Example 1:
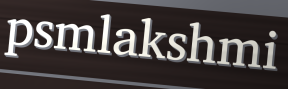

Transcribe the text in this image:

psmlakshmi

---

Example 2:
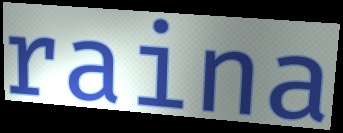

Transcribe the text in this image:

raina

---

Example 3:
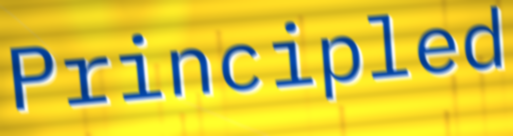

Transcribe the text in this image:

Principled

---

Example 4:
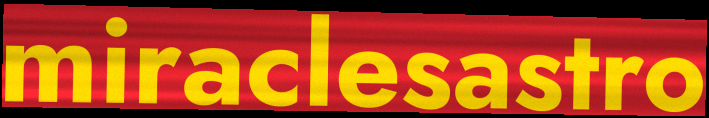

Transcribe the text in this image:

miraclesastro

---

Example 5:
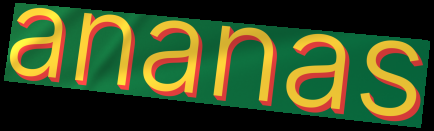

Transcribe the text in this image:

ananas